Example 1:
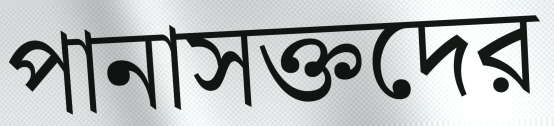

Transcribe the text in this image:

পানাসক্তদের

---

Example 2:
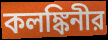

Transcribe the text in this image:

কলঙ্কিনীর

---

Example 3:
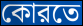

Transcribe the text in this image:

কোরতে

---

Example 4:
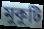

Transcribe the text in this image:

মুকুটি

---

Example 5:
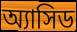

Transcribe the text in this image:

অ্যাসিড